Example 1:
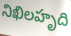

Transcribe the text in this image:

నిఖిలహృది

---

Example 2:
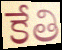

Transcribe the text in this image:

కేతి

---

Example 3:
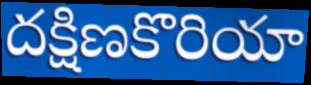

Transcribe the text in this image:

దక్షిణకొరియా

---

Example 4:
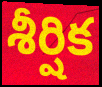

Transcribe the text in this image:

శీర్షిక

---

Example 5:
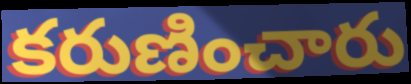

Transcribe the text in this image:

కరుణించారు